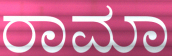
ರಾಮಾ